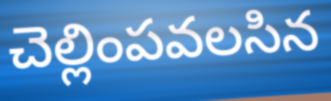
చెల్లింపవలసిన